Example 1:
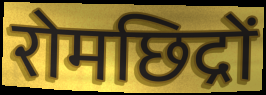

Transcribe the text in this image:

रोमछिद्रों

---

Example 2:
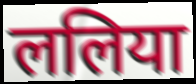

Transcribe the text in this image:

ललिया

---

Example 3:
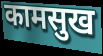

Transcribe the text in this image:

कामसुख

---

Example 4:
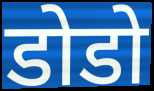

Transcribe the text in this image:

डोडो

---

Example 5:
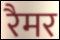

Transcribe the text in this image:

रैमर